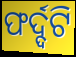
ଫର୍ଦ୍ଦଟି